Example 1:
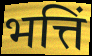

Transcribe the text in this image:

भत्तिं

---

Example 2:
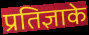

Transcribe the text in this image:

प्रतिज्ञाके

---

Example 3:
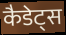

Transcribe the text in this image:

कैडेट्स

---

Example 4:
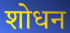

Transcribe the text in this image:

शोधन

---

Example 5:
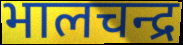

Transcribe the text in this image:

भालचन्द्र